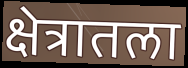
क्षेत्रातला